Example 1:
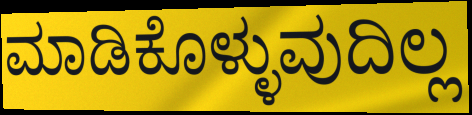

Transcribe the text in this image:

ಮಾಡಿಕೊಳ್ಳುವುದಿಲ್ಲ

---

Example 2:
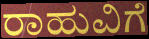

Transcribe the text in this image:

ರಾಹುವಿಗೆ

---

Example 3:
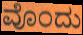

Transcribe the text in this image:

ವೊಂದು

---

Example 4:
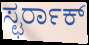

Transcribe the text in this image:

ಸ್ಟರ್ರಾಕ್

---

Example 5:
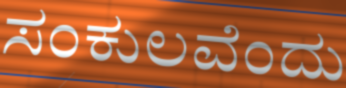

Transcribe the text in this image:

ಸಂಕುಲವೆಂದು